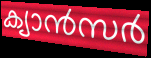
ക്യാൻസർ